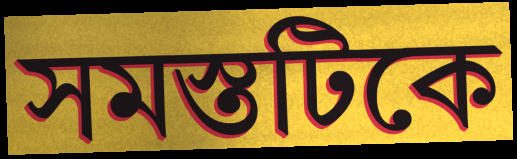
সমস্তটিকে